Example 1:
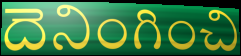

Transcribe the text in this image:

దెనింగించి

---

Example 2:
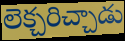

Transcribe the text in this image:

లెక్చరిచ్చాడు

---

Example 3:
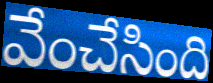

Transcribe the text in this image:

వేంచేసింది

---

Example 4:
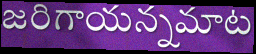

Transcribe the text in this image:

జరిగాయన్నమాట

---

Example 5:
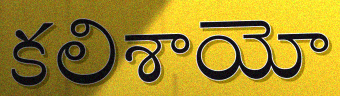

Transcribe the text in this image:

కలిశాయో